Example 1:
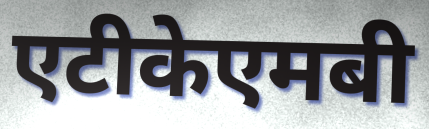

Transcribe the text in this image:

एटीकेएमबी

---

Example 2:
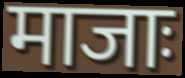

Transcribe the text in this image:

माजाः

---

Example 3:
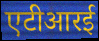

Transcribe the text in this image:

एटीआरई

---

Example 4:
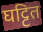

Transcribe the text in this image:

घट्टित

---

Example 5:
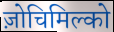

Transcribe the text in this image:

ज़ोचिमिल्को